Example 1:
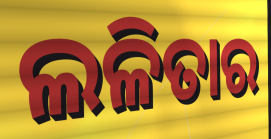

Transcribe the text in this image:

ଲଳିତାର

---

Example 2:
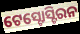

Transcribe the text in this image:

ଟେସ୍ଟୋସ୍ଟିରନ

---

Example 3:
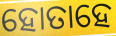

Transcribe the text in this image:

ହୋତାହେ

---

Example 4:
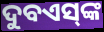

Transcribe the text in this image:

ଦୁବଏସ୍‌ଙ୍କ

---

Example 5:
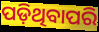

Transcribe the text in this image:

ପଡ଼ିଥିବାପରି